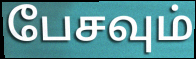
பேசவும்